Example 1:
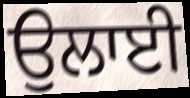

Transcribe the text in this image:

ਉਲਾਈ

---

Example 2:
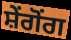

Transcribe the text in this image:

ਸ਼ੇਂਗੋਂਗ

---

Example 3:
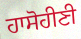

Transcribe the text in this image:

ਹਾਸੋਹੀਣੀ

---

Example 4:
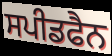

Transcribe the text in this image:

ਸਪੀਡਫੈਨ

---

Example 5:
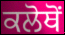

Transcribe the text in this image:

ਕਲੋਥੋਂ